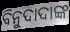
ବିନୁଦାଦାଙ୍କ